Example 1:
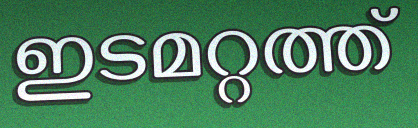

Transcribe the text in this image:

ഇടമറ്റത്ത്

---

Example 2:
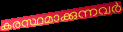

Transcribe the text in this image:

കരസ്ഥമാക്കുന്നവർ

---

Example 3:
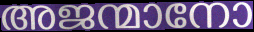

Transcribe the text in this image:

അജന്മാനോ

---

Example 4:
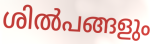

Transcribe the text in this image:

ശിൽപങ്ങളും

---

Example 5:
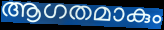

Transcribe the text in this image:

ആഗതമാകും